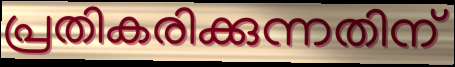
പ്രതികരിക്കുന്നതിന്